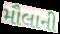
મૌલાની